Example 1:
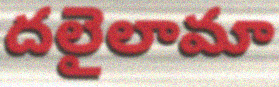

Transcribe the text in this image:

దలైలామా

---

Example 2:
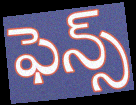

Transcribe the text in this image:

ఫెన్స్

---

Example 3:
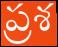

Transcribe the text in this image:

ప్రశ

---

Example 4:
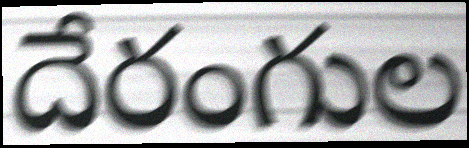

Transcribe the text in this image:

దేరంగుల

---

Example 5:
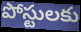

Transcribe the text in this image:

పోస్టులకు